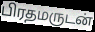
பிரதமருடன்